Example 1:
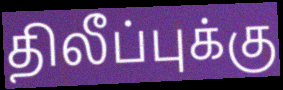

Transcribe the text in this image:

திலீப்புக்கு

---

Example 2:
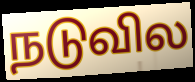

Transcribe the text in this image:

நடுவில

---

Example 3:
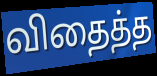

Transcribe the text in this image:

விதைத்த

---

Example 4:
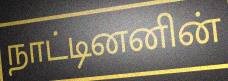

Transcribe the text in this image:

நாட்டினனின்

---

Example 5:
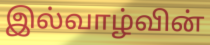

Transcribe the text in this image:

இல்வாழ்வின்